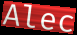
Alec